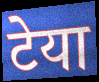
टेया